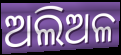
ଅଲିଅଳ